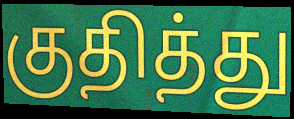
குதித்து